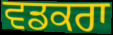
ਵਡਕਰਾ